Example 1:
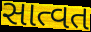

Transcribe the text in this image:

સાત્વત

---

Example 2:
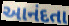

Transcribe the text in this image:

આનંદતા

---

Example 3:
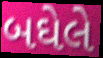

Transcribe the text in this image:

બઘેલે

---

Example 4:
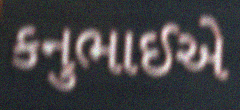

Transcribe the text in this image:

કનુભાઈએ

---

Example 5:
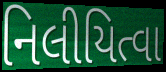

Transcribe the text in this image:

નિલીયિત્વા